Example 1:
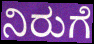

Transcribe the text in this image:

ನಿರುಗೆ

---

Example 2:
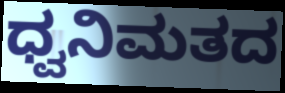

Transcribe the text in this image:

ಧ್ವನಿಮತದ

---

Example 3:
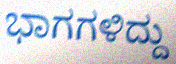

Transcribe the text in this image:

ಭಾಗಗಳಿದ್ದು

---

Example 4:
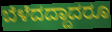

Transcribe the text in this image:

ಬೆಳೆದದ್ದಾದರೂ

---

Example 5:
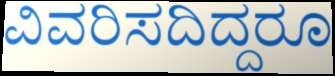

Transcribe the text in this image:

ವಿವರಿಸದಿದ್ದರೂ